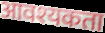
आवश्‍यकता